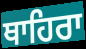
ਥਾਹਿਰਾ